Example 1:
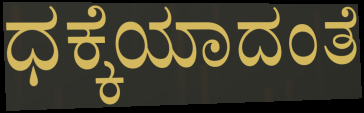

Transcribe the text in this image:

ಧಕ್ಕೆಯಾದಂತೆ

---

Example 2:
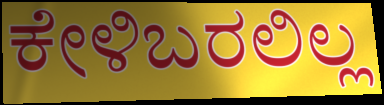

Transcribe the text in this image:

ಕೇಳಿಬರಲಿಲ್ಲ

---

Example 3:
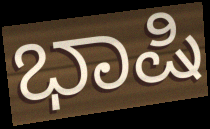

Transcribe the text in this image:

ಭಾಷಿ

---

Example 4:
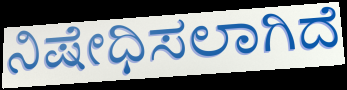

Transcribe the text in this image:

ನಿಷೇಧಿಸಲಾಗಿದೆ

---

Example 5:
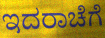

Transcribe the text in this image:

ಇದರಾಚೆಗೆ